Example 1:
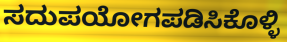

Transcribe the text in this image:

ಸದುಪಯೋಗಪಡಿಸಿಕೊಳ್ಳಿ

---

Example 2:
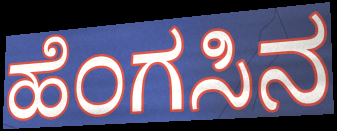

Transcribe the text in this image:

ಹೆಂಗಸಿನ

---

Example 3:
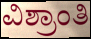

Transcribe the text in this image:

ವಿಶ್ರಾಂತಿ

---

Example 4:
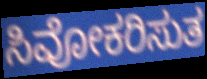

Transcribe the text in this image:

ಸಿವೋಕರಿಸುತ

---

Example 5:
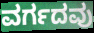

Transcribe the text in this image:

ವರ್ಗದವು